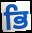
ਭਿ